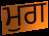
ਮੁਗ